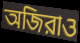
অজিরাও